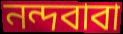
নন্দবাবা